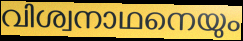
വിശ്വനാഥനെയും